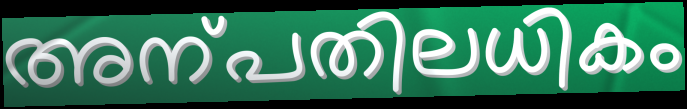
അന്പതിലധികം